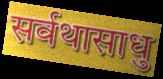
सर्वथासाधु